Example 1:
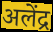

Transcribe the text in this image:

अलेंद्र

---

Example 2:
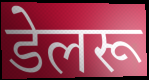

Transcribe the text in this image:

डेलरू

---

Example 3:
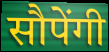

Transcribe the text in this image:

सौपेंगी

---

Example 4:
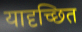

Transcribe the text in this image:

यादृच्छित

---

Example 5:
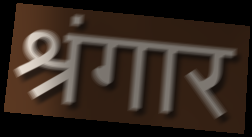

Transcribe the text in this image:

श्रंगार